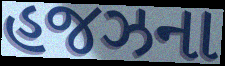
હજઝના